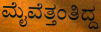
ಮೈವೆತ್ತಂತಿದ್ದ